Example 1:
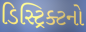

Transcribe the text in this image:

ડિસ્ટ્રિક્ટનો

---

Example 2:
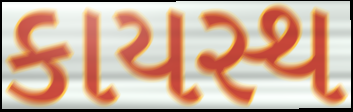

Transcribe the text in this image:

કાયસ્થ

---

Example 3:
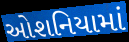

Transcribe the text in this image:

ઓશનિયામાં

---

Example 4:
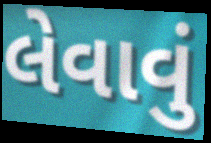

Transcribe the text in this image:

લેવાવું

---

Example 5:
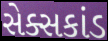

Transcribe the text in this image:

સેક્સકાંડ